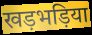
खड़भड़िया